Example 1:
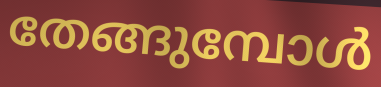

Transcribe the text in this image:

തേങ്ങുമ്പോൾ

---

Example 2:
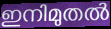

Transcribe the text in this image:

ഇനിമുതൽ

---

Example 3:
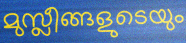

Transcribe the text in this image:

മുസ്ലീങ്ങളുടെയും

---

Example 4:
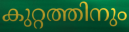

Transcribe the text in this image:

കുറ്റത്തിനും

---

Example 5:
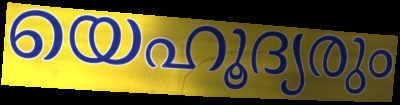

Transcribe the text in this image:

യെഹൂദ്യരും